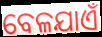
ବେଳଯାଏଁ